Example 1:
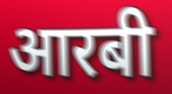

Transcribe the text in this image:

आरबी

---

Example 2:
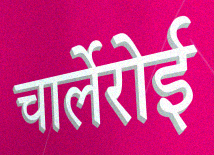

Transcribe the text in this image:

चार्लेरोई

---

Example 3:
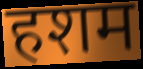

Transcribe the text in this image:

हशम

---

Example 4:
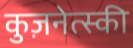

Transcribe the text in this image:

कुज़नेत्स्की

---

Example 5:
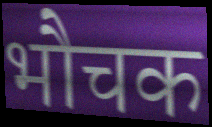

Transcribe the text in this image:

भौचक